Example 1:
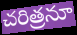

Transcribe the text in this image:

చరిత్రనూ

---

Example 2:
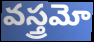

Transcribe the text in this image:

వస్త్రమో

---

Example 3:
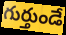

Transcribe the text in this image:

గుర్తుండే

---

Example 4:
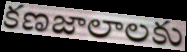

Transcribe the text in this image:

కణజాలాలకు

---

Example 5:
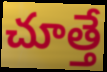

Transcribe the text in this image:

చూత్తే